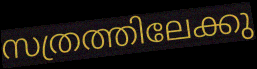
സത്രത്തിലേക്കു